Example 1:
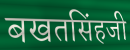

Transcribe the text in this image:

बखतसिंहजी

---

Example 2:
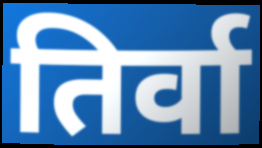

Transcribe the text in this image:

तिर्वा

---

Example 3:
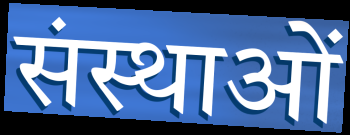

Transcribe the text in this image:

संस्‍थाओं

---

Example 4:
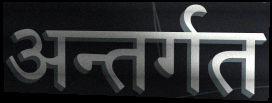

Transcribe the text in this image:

अन्‍तर्गत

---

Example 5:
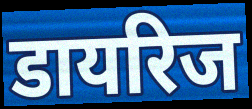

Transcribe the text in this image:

डायरिज